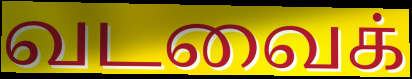
வடவைக்